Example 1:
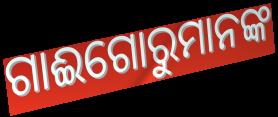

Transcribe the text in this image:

ଗାଈଗୋରୁମାନଙ୍କ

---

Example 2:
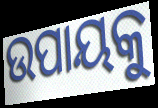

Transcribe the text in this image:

ଉପାୟକୁ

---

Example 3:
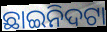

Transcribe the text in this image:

ଛାଇନିଦଟା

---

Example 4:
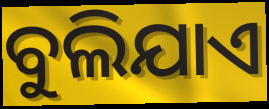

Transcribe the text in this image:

ବୁଲିଯାଏ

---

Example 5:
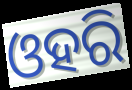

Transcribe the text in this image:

ଓହରି